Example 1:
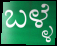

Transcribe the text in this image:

ಬಳ್ಳೆ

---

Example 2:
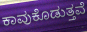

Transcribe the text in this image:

ಕಾವುಕೊಡುತ್ತವೆ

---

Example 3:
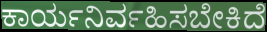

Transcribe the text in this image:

ಕಾರ್ಯನಿರ್ವಹಿಸಬೇಕಿದೆ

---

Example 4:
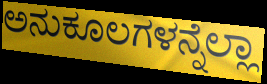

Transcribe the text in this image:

ಅನುಕೂಲಗಳನ್ನೆಲ್ಲಾ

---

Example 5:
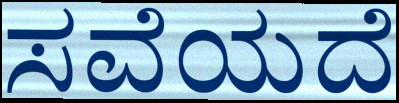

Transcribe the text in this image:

ಸವೆಯದೆ